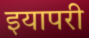
इयापरी